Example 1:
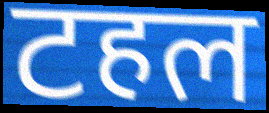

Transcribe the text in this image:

टहल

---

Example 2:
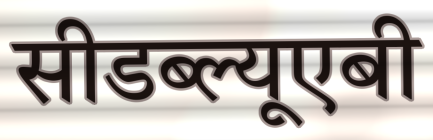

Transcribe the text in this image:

सीडब्ल्यूएबी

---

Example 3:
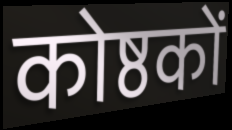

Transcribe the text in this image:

कोष्ठकों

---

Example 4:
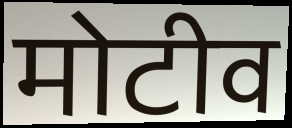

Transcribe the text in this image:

मोटीव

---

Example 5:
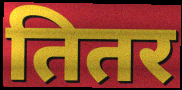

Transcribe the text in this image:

तितर